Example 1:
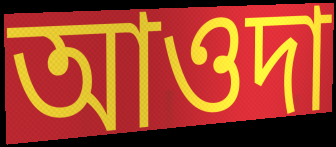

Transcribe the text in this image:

আওদা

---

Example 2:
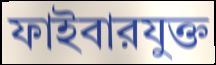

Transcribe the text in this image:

ফাইবারযুক্ত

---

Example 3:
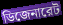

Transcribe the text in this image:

ডিজেনারেট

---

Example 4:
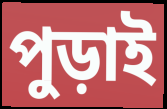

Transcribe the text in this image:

পুড়াই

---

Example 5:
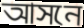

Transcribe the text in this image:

আসনে